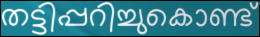
തട്ടിപ്പറിച്ചുകൊണ്ട്